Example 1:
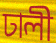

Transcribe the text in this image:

ঢালী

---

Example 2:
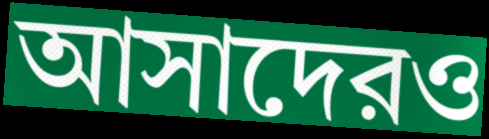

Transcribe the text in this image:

আসাদেরও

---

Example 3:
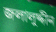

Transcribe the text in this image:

জলালুদ্দীন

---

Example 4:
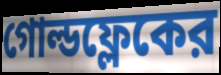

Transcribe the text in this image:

গোল্ডফ্লেকের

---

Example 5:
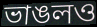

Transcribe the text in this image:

ভাঙলও